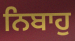
ਨਿਬਾਹੁ